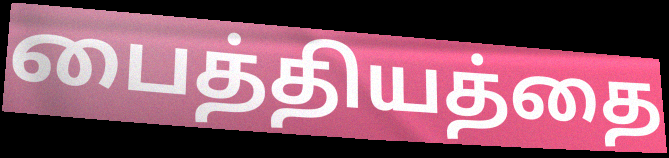
பைத்தியத்தை